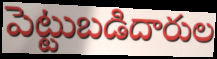
పెట్టుబడిదారుల